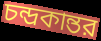
চন্দ্রকান্তর